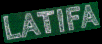
LATIFA